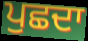
ਪੁਛਦਾ